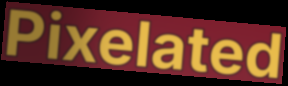
Pixelated